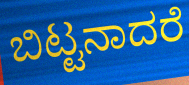
ಬಿಟ್ಟನಾದರೆ